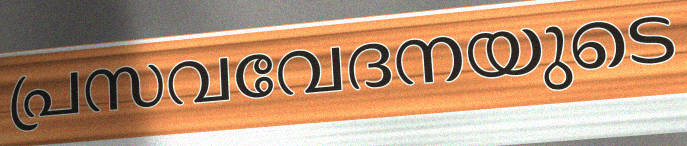
പ്രസവവേദനയുടെ